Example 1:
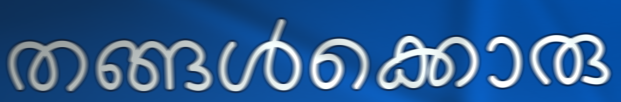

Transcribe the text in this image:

തങ്ങൾക്കൊരു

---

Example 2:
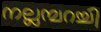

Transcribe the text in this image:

നല്ലമ്പറച്ചി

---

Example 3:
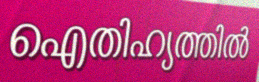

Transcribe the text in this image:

ഐതിഹ്യത്തിൽ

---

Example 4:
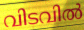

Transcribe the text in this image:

വിടവിൽ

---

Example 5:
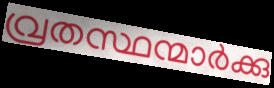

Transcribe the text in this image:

വ്രതസ്ഥന്മാർക്കു